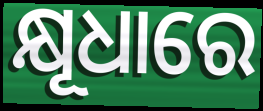
କ୍ଷୂଧାରେ